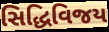
સિદ્ધિવિજય